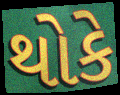
થોકે